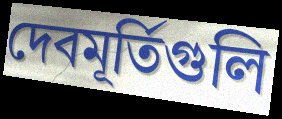
দেবমূর্তিগুলি